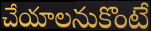
చేయాలనుకొంటే